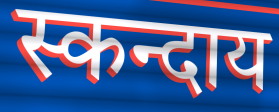
स्कन्दाय